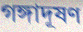
গঙ্গাদূষণ